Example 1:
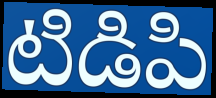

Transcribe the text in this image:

టిడిపి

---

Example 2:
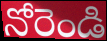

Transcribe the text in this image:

నోరెండి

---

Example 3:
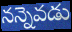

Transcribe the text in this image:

నన్నెవడు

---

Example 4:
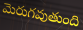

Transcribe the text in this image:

మెరుగవుతుంది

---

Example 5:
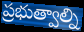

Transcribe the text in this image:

ప్రభుత్వాల్ని